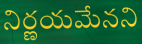
నిర్ణయమేనని